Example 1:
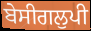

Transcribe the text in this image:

ਬੇਸੀਗਲੁਪੀ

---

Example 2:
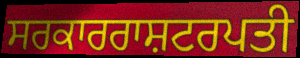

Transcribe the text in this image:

ਸਰਕਾਰਰਾਸ਼ਟਰਪਤੀ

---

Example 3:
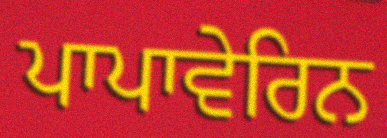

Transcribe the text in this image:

ਪਾਪਾਵੇਰਿਨ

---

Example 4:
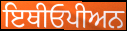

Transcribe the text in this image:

ਇਥੀਓਪੀਅਨ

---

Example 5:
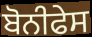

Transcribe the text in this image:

ਬੋਨੀਫੇਸ